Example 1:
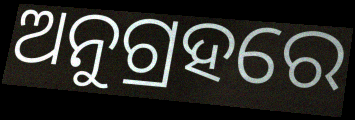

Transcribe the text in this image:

ଅନୁଗ୍ରହରେ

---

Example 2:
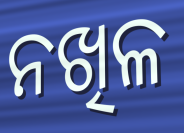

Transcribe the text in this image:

ନଖିଳ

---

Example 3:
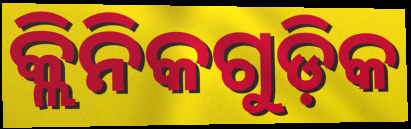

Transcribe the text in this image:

କ୍ଲିନିକଗୁଡ଼ିକ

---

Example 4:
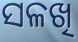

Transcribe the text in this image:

ସଳଖି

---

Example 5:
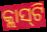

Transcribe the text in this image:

କ୍ଲାସ୍‍ଟି